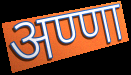
अण्णा